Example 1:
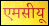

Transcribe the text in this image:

एमसीयू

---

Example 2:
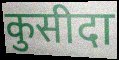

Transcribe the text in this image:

कुसीदा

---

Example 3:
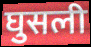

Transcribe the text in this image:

घुसली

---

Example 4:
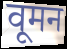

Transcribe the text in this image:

वूमन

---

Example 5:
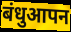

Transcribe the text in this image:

बंधुआपन